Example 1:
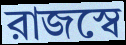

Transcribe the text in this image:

রাজস্বে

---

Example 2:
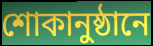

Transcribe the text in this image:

শোকানুষ্ঠানে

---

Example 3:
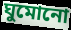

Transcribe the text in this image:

ঘুমোনো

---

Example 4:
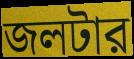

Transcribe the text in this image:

জলটার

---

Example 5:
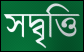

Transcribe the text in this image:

সদ্বৃত্তি